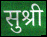
सुश्री